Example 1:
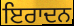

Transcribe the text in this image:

ਇਰਾਦਨ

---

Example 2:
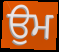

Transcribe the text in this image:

ਉਮ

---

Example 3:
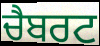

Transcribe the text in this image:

ਚੈਬਰਟ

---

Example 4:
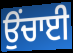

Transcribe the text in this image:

ਉਂਚਾਈ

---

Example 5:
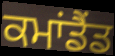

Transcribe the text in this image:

ਕਮਾਂਡੈਂਡ